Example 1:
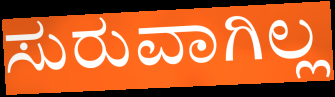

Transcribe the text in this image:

ಸುರುವಾಗಿಲ್ಲ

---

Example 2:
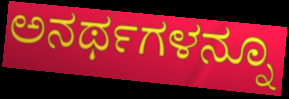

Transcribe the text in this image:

ಅನರ್ಥಗಳನ್ನೂ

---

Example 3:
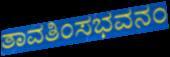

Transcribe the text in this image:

ತಾವತಿಂಸಭವನಂ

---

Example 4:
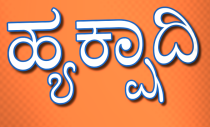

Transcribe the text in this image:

ಹ್ಯಕ್ಷಾದಿ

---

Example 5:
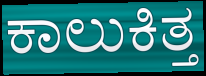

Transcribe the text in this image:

ಕಾಲುಕಿತ್ತ